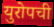
युरोपची